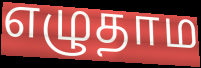
எழுதாம